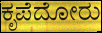
ಕೃಪೆದೋರು